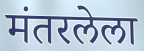
मंतरलेला